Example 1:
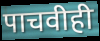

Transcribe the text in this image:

पाचवीही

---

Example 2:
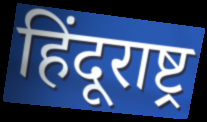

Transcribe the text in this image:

हिंदूराष्ट्र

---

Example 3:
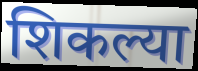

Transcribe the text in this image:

शिकल्या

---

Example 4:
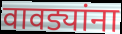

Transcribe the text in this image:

वावड्यांना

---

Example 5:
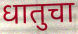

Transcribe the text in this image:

धातुचा